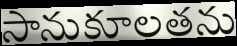
సానుకూలతను